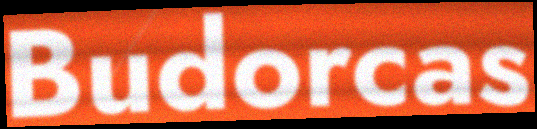
Budorcas